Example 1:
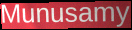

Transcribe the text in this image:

Munusamy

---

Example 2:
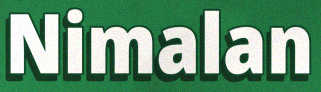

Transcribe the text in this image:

Nimalan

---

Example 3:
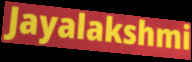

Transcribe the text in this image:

Jayalakshmi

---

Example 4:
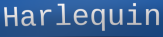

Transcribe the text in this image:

Harlequin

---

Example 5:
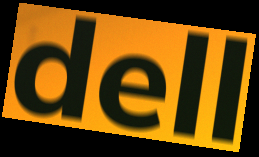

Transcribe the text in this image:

dell